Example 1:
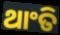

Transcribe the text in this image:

ଥାଂତି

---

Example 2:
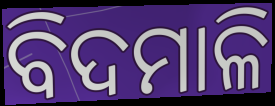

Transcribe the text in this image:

ବିଦମାଳି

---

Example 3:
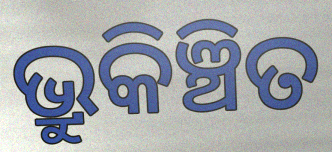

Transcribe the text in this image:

ଭ୍ରୁକିଞ୍ଚିତ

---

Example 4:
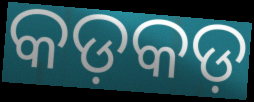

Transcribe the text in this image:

କଡ଼କଡ଼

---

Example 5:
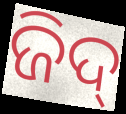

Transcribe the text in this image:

ଜିଦ୍